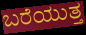
ಬರೆಯುತ್ತ